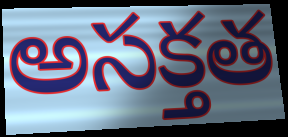
అసక్తత